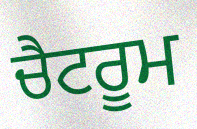
ਚੈਟਰੂਮ